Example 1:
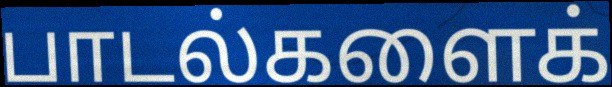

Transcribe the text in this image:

பாடல்களைக்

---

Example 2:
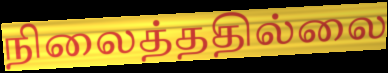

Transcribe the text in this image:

நிலைத்ததில்லை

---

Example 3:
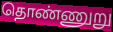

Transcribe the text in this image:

தொண்ணுறு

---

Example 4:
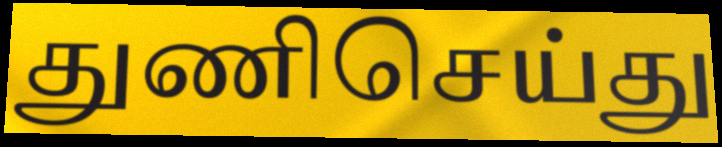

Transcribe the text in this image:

துணிசெய்து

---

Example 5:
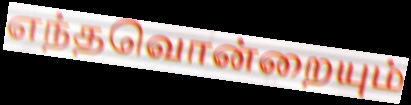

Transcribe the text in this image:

எந்தவொன்றையும்